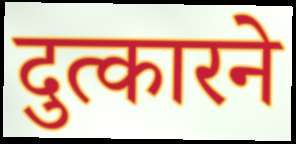
दुत्कारने